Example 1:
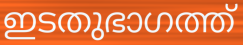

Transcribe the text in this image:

ഇടതുഭാഗത്ത്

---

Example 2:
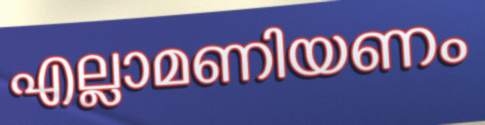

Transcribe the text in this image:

എല്ലാമണിയണം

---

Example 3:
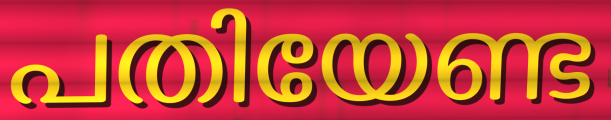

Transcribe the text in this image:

പതിയേണ്ട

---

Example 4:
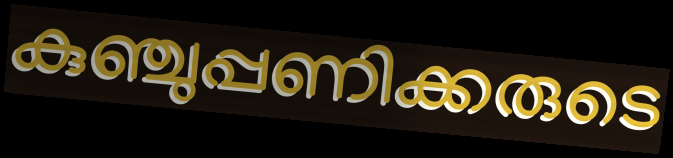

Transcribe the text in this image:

കുഞ്ചുപ്പണിക്കരുടെ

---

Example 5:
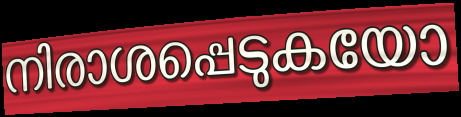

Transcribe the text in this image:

നിരാശപ്പെടുകയോ